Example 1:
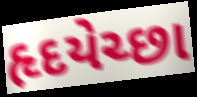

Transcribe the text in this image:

હૃદયેચ્છા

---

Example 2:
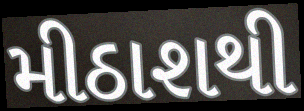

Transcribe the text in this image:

મીઠાશથી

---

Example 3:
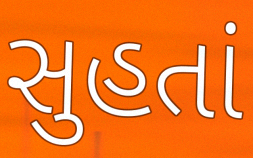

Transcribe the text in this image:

સુહતાં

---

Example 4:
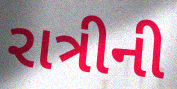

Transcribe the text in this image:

રાત્રીની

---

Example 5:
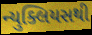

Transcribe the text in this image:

ન્યુક્લિયસથી